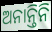
ଅନାନ୍ତିନି